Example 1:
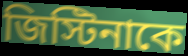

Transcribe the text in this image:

জিস্টিনাকে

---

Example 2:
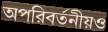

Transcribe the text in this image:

অপরিবর্তনীয়ও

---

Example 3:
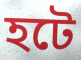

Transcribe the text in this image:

হটে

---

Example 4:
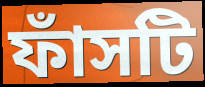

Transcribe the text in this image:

ফাঁসটি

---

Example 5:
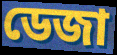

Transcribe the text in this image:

ডেজা